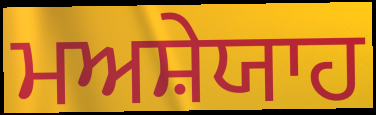
ਮਅਸ਼ੇਯਾਹ